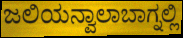
ಜಲಿಯನ್ವಾಲಾಬಾಗ್ನಲ್ಲಿ